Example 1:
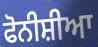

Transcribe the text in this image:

ਫੋਨੀਸ਼ੀਆ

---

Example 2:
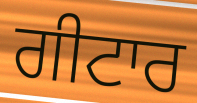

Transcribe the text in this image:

ਗੀਟਾਰ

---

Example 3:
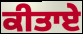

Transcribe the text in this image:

ਕੀਤਾਏ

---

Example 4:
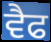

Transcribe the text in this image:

ਵੈਫ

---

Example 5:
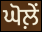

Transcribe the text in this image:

ਘੋਲ਼ੇਂ